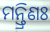
ମନ୍ତ୍ରିଣଃ